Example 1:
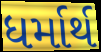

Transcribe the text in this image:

ધર્માર્થ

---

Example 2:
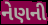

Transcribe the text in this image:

નેણની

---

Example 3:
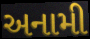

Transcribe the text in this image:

અનામી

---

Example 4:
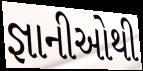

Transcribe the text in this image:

જ્ઞાનીઓથી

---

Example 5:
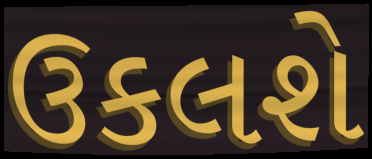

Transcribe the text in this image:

ઉકલશે